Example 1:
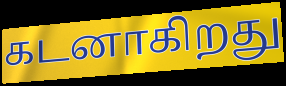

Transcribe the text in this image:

கடனாகிறது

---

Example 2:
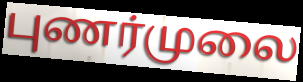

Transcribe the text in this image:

புணர்முலை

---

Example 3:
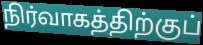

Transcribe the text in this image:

நிர்வாகத்திற்குப்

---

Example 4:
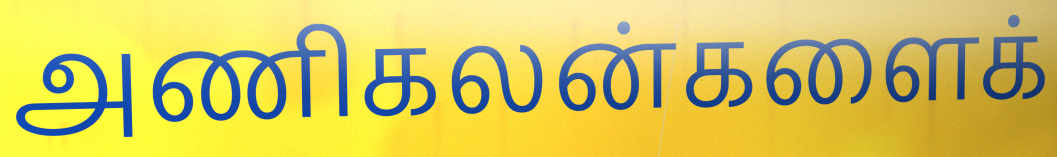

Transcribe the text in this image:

அணிகலன்களைக்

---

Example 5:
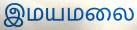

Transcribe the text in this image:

இமயமலை